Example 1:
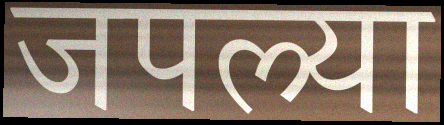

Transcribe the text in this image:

जपल्या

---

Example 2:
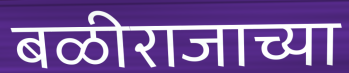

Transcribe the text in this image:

बळीराजाच्या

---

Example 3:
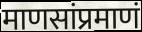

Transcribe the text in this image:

माणसांप्रमाणं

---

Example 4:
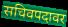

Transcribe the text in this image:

सचिवपदावर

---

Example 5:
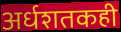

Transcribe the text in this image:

अर्धशतकही